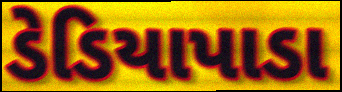
ડેડિયાપાડા